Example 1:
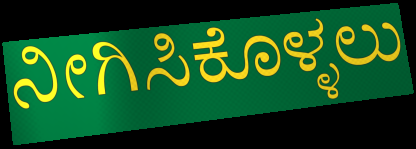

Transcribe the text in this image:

ನೀಗಿಸಿಕೊಳ್ಳಲು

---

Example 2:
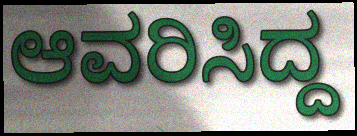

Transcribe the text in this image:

ಆವರಿಸಿದ್ದ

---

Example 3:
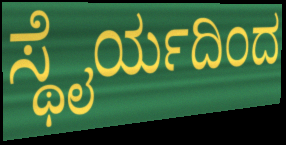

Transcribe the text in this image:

ಸ್ಥೈರ್ಯದಿಂದ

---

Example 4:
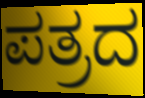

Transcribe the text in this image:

ಪತ್ರದ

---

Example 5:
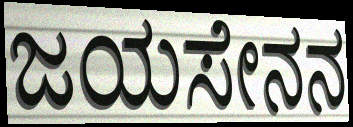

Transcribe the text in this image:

ಜಯಸೇನನ